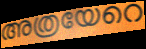
അത്രയേറെ